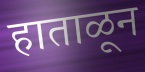
हाताळून